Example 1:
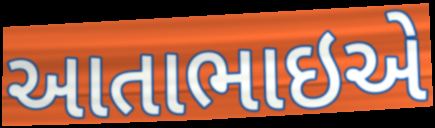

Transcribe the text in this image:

આતાભાઇએ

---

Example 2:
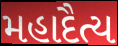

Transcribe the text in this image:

મહાદૈત્ય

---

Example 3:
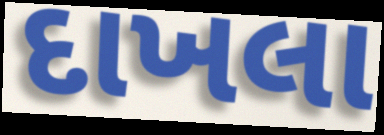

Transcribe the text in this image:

દાખલા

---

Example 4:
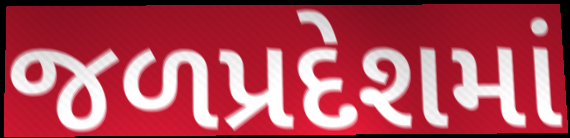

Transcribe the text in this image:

જળપ્રદેશમાં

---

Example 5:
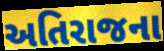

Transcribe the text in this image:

અતિરાજના